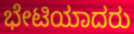
ಭೇಟಿಯಾದರು